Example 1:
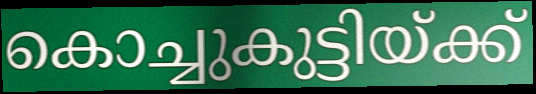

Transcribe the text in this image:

കൊച്ചുകുട്ടിയ്ക്ക്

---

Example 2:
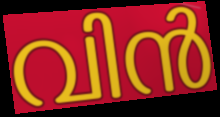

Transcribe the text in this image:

വിൻ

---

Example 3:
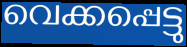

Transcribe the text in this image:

വെക്കപ്പെട്ടു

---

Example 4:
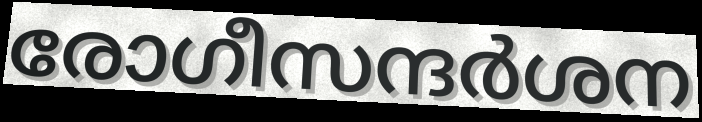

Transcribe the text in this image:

രോഗീസന്ദർശന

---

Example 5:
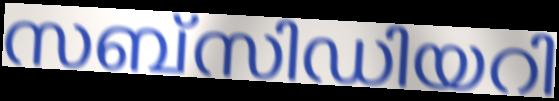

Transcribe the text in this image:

സബ്സിഡിയറി